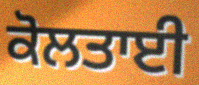
ਕੋਲਤਾਈ